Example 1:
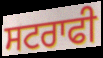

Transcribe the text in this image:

ਸਟਰਾਫੀ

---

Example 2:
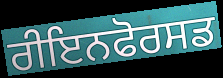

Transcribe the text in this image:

ਰੀਇਨਫੋਰਸਡ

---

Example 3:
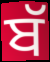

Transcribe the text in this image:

ਬੱ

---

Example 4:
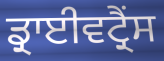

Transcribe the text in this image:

ਡ੍ਰਾਈਵਟ੍ਰੈਂਸ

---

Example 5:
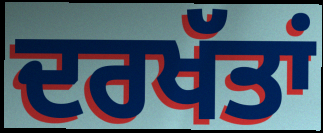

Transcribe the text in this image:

ਦਰਖੱਤਾਂ